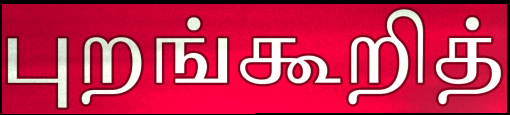
புறங்கூறித்